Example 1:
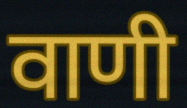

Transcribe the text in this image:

वाणी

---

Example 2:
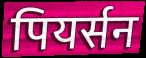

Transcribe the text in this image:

पियर्सन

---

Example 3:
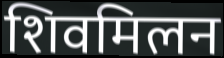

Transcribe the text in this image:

शिवमिलन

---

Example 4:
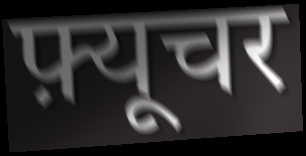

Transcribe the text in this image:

फ़्यूचर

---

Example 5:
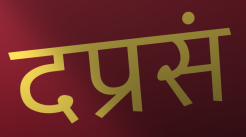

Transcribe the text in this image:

दप्रसं